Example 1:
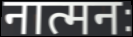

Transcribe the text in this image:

नात्मनः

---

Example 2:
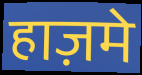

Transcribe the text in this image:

हाज़मे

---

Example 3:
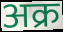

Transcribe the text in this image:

अक्र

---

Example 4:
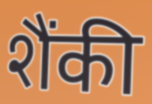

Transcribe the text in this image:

शैंकी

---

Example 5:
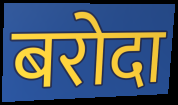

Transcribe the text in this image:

बरोदा